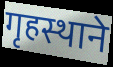
गृहस्थाने